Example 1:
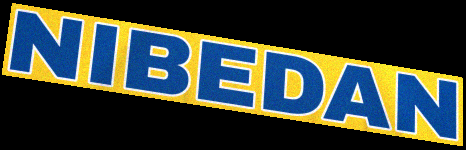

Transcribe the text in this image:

NIBEDAN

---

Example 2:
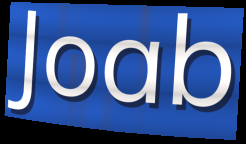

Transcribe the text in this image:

Joab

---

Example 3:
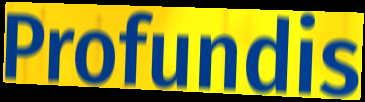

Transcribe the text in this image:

Profundis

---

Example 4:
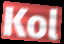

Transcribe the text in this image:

Kol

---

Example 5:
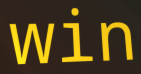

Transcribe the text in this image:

win